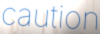
caution